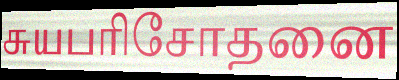
சுயபரிசோதனை